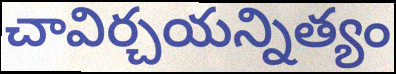
చావిర్చయన్నిత్యం